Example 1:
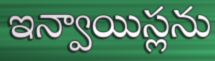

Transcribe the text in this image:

ఇన్వాయిస్లను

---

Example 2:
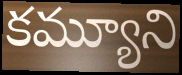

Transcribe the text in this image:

కమ్యూని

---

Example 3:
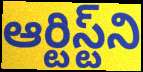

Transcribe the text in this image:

ఆర్టిస్ట్‌ని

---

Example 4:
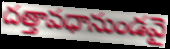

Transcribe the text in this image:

దత్తావధానుండవై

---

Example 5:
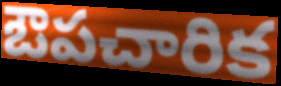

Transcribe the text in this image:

ఔపచారిక